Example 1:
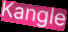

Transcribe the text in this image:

Kangle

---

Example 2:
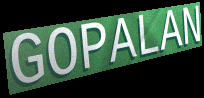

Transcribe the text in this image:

GOPALAN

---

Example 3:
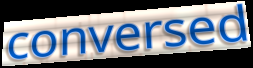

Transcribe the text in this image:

conversed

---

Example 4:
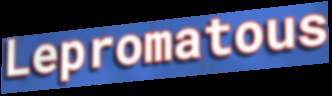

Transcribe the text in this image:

Lepromatous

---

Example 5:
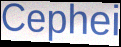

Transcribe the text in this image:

Cephei